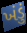
ખંડું